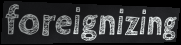
foreignizing